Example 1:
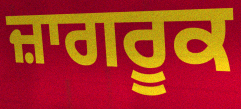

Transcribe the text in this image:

ਜ਼ਾਗਰੂਕ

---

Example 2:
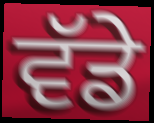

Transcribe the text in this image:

ਵੱਡੇ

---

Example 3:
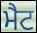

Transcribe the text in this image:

ਮੈਟ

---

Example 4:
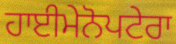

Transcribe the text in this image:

ਹਾਈਮੇਨੋਪਟੇਰਾ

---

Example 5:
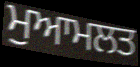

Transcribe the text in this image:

ਮੁਆਮਲਤ